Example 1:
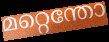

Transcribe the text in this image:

മറ്റെന്തോ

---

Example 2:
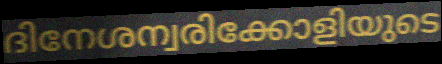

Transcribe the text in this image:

ദിനേശന്വരിക്കോളിയുടെ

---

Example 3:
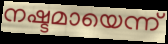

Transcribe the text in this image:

നഷ്ടമായെന്ന്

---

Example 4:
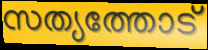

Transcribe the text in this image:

സത്യത്തോട്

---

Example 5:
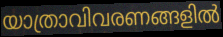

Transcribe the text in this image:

യാത്രാവിവരണങ്ങളിൽ